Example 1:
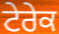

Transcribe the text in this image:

ਟੇਰੇਕ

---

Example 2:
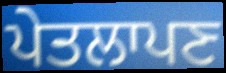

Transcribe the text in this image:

ਪੇਤਲਾਪਣ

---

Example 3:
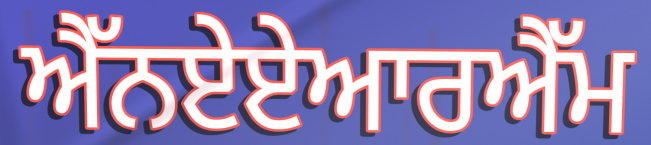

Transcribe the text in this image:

ਐੱਨਏਏਆਰਐੱਮ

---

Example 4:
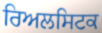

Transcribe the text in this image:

ਰਿਅਲਸਿਟਕ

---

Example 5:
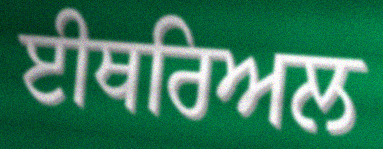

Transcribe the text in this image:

ਈਥਰਿਅਲ